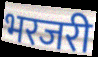
भरजरी